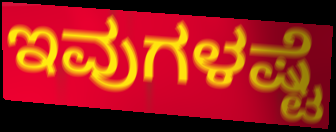
ಇವುಗಳಷ್ಟೆ